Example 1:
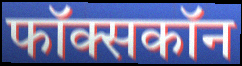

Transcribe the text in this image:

फॉक्सकॉन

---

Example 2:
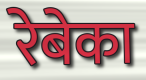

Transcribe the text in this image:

रेबेका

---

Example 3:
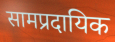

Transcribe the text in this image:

सामप्रदायिक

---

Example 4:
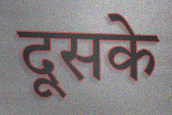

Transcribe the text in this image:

दूसके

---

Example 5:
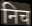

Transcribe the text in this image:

निच